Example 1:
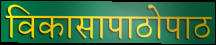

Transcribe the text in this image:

विकासापाठोपाठ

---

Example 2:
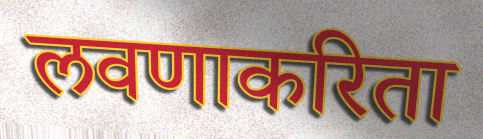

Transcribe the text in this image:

लवणाकरिता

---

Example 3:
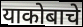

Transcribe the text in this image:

याकोबाचे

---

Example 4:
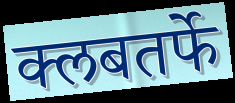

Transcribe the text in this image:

क्लबतर्फे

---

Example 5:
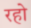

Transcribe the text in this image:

रहो